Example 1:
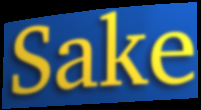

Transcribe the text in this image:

Sake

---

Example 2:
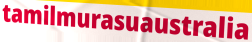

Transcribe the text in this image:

tamilmurasuaustralia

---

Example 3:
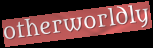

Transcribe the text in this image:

otherworldly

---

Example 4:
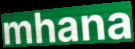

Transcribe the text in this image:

mhana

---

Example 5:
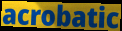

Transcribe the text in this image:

acrobatic